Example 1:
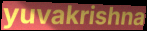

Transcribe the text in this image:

yuvakrishna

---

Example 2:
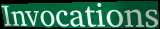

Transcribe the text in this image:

Invocations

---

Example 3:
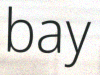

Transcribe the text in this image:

bay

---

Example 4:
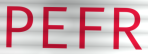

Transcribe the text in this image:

PEFR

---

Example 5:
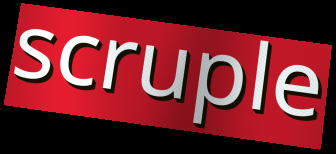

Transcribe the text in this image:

scruple